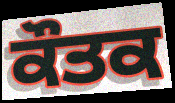
ਕੌਤਕ